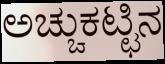
ಅಚ್ಚುಕಟ್ಟಿನ